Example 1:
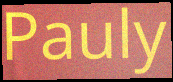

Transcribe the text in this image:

Pauly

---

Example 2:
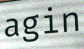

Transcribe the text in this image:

agin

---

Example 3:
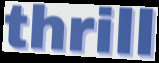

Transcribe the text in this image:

thrill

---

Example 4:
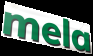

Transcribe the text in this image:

mela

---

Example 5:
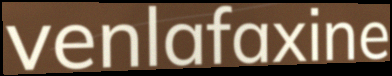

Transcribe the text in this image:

venlafaxine